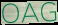
OAG